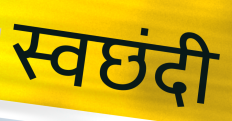
स्वछंदी